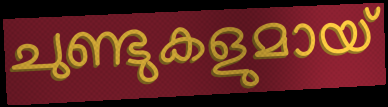
ചുണ്ടുകളുമായ്